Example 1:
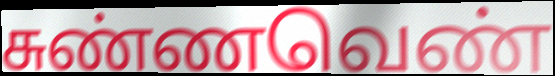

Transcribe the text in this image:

சுண்ணவெண்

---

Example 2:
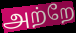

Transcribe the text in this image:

அற்றே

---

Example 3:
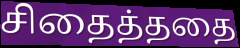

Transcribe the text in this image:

சிதைத்ததை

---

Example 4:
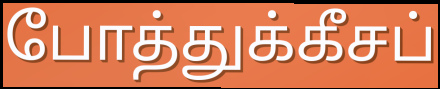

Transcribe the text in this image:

போத்துக்கீசப்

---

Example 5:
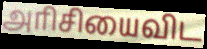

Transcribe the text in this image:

அரிசியைவிட